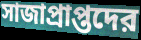
সাজাপ্রাপ্তদের